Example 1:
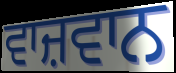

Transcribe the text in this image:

ਵਾਜ਼ਵਾਨ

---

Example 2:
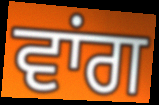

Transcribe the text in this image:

ਵਾਂਗ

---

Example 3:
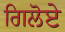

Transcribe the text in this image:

ਗਿਲੋਏ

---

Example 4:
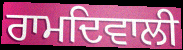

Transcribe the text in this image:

ਰਾਮਦਿਵਾਲੀ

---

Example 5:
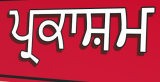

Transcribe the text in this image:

ਪ੍ਰਕਾਸ਼ਮ